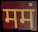
ममं